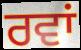
ਰਵਾਂ